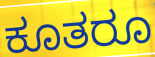
ಕೂತರೂ